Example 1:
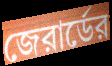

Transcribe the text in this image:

জেরার্ডের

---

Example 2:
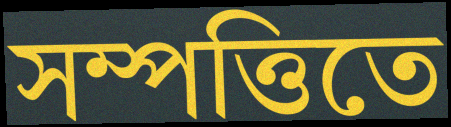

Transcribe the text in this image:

সম্পত্তিতে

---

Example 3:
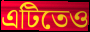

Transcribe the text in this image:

এটিতেও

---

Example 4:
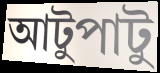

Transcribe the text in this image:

আটুপাটু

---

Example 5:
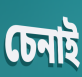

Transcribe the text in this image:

চেনাই